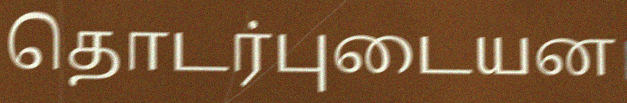
தொடர்புடையன